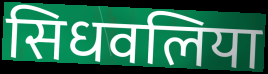
सिधवलिया